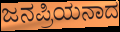
ಜನಪ್ರಿಯನಾದ